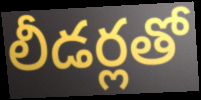
లీడర్లతో